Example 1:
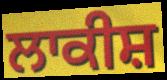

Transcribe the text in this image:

ਲਾਕੀਸ਼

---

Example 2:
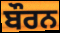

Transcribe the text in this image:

ਬੌਰਨ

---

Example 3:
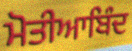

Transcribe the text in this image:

ਮੋਤੀਆਬਿੰਦ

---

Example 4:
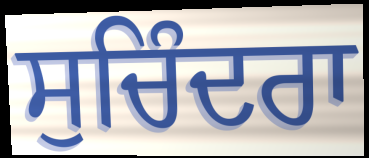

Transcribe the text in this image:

ਸੁਚਿੰਦਰਾ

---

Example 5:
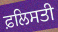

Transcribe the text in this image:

ਫ਼ਲਿਸਤੀ